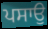
ਪਸਾਉ